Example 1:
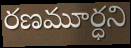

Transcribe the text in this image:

రణమూర్ధని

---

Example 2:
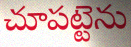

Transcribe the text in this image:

చూపట్టెను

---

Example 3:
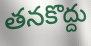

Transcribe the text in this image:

తనకొద్దు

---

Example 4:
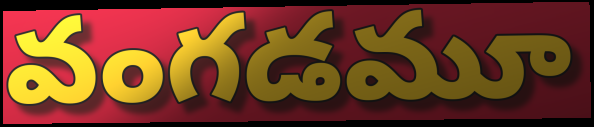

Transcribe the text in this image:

వంగడమూ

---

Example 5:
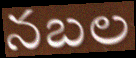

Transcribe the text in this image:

నబల